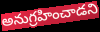
అనుగ్రహించాడని